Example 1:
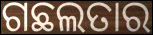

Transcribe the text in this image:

ଗଛଲତାର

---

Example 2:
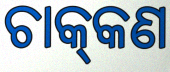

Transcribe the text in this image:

ଚାକ୍‌କଣ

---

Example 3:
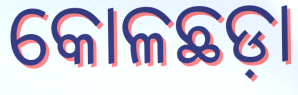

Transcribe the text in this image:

କୋଳଛଡ଼ା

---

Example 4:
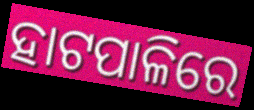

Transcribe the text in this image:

ହାଟପାଳିରେ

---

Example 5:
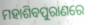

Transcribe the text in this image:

ମହାଶିବପୁରାଣରେ